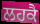
ਲਹਕੈ